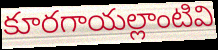
కూరగాయల్లాంటివి